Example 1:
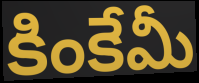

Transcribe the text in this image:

కింకేమీ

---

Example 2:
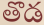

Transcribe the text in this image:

తొడ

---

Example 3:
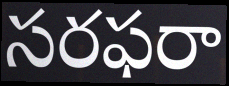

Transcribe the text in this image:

సరఫరా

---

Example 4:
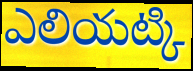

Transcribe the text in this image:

ఎలియట్కి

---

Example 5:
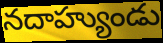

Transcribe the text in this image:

నదాహ్యుండు